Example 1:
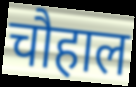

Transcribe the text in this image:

चौहाल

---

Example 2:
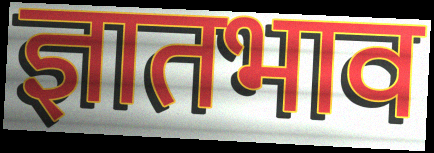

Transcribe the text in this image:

ज्ञातभाव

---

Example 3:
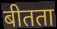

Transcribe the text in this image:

बीतता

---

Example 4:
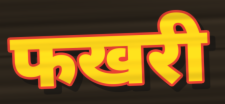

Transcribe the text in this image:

फखरी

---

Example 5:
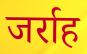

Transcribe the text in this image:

जर्राह